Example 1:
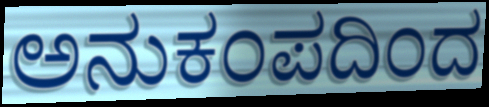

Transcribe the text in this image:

ಅನುಕಂಪದಿಂದ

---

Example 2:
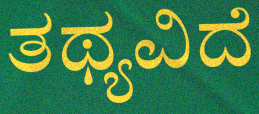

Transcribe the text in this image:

ತಥ್ಯವಿದೆ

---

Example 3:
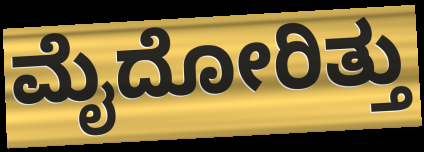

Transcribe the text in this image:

ಮೈದೋರಿತ್ತು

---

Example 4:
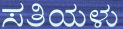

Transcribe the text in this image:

ಸತಿಯಳು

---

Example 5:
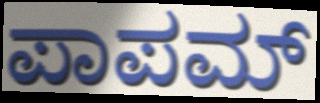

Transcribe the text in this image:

ಪಾಪಮ್